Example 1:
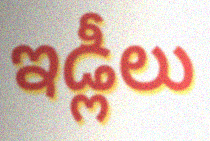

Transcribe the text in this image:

ఇడ్లీలు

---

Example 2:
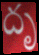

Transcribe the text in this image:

దృ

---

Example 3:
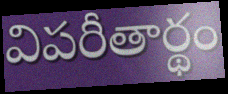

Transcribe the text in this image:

విపరీతార్థం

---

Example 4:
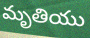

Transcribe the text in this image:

మృతియు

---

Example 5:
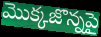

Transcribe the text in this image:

మొక్కజొన్నపై